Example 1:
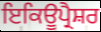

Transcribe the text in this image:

ਇਕਿਊਪ੍ਰੈਸ਼ਰ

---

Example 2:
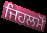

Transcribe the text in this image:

ਜਿਹਲਮੋਂ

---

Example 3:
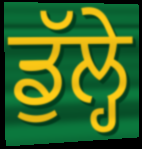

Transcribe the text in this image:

ਡੁੱਲ੍ਹੇ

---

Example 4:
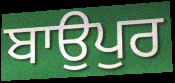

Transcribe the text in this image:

ਬਾਉਪੁਰ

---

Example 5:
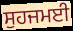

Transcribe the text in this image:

ਸੁਹਜਮਈ